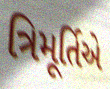
ત્રિમૂર્તિએ